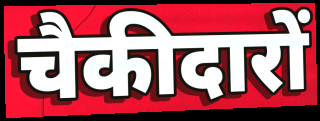
चैकीदारों